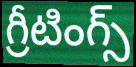
గ్రీటింగ్స్